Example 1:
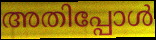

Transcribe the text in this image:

അതിപ്പോൾ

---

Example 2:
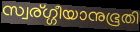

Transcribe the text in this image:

സ്വര്ഗ്ഗീയാനുഭൂതി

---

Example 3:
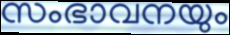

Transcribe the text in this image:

സംഭാവനയും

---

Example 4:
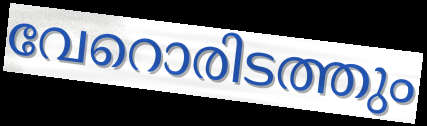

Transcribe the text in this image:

വേറൊരിടത്തും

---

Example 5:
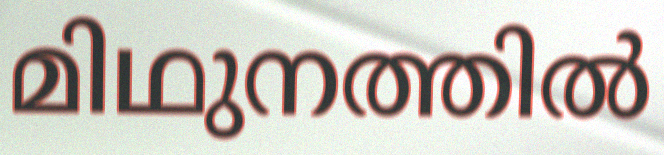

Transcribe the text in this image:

മിഥുനത്തിൽ